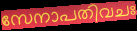
സേനാപതിവചഃ